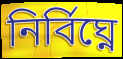
নিৰ্বিঘ্নে